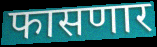
फासणार